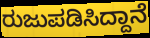
ರುಜುಪಡಿಸಿದ್ದಾನೆ